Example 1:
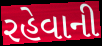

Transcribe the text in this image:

રહેવાની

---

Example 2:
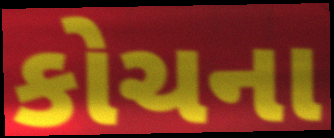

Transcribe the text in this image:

કોચના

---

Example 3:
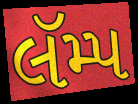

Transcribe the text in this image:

લૅમ્પ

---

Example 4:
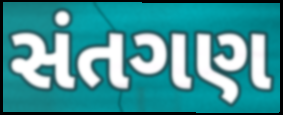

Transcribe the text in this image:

સંતગણ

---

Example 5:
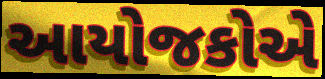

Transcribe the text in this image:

આયોજકોએ